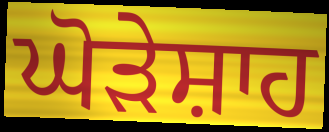
ਘੋੜੇਸ਼ਾਹ